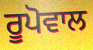
ਰੂਪੋਵਾਲ